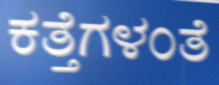
ಕತ್ತೆಗಳಂತೆ